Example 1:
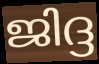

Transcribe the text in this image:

ജിദ്ദ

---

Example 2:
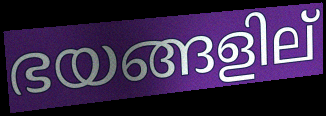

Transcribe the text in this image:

ഭയങ്ങളില്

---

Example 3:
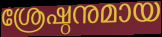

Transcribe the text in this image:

ശ്രേഷ്ഠനുമായ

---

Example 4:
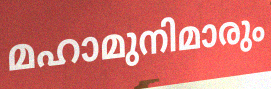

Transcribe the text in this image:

മഹാമുനിമാരും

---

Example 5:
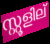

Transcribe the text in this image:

സ്റ്റൂളില്